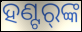
ହଣ୍ଟର୍‌ଙ୍କ